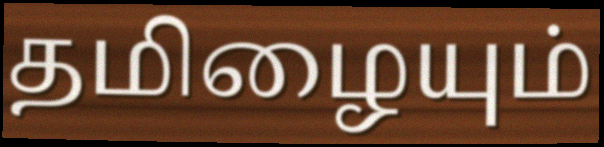
தமிழையும்